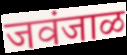
जवंजाळ